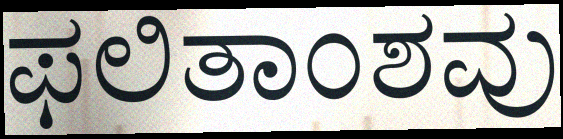
ಫಲಿತಾಂಶವು